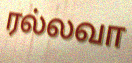
ரல்லவா